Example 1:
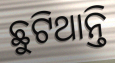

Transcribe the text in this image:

ଛୁଟିଥାନ୍ତି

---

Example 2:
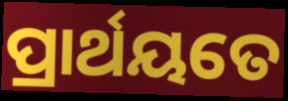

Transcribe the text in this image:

ପ୍ରାର୍ଥୟତେ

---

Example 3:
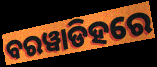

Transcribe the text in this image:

ବରୱାଡିହରେ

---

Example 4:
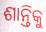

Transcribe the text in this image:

ଶାନ୍ତିକୁ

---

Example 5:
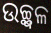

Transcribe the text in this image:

ଉଚ୍ଛ୍ୱଳ